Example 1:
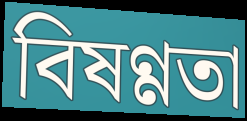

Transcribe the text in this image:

বিষণ্ণতা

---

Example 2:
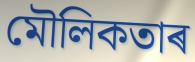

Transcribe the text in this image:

মৌলিকতাৰ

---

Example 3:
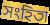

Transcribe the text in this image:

সংহিতা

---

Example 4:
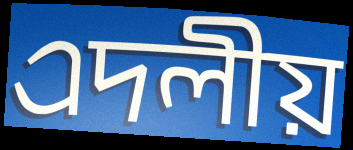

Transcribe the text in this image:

এদলীয়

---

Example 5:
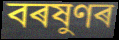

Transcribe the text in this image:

বৰষুণৰ